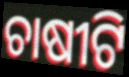
ଚାଷୀଟି